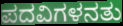
ಪದವಿಗಳನತು